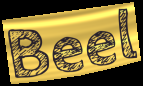
Beel